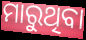
ମାରୁଥିବା